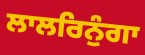
ਲਾਲਰਿਨੁੰਗਾ